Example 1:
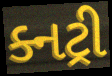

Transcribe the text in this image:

ક્નટ્રી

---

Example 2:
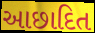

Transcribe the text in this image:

આછાદિત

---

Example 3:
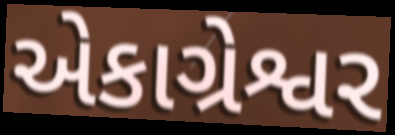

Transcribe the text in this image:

એકાગ્રેશ્વર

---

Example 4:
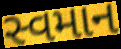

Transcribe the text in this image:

સ્વમાન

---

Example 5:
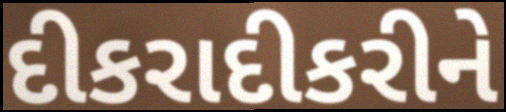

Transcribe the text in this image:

દીકરાદીકરીને